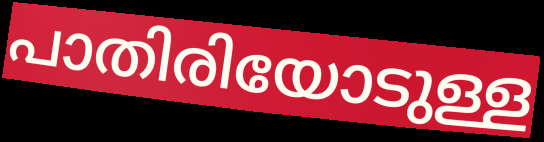
പാതിരിയോടുള്ള